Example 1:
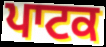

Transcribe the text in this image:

ਪਾਟਕ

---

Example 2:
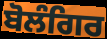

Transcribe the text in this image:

ਬੋਲੰਗਿਰ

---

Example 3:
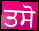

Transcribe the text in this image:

ਤਸੋ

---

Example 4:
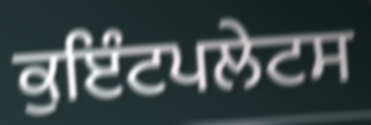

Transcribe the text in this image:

ਕੁਇੰਟਪਲੇਟਸ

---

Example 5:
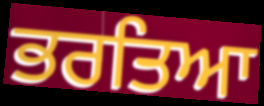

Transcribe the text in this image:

ਭਰਤਿਆ